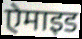
ऐमाइड